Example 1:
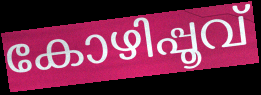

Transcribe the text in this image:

കോഴിപ്പൂവ്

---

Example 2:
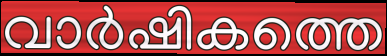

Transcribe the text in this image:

വാർഷികത്തെ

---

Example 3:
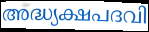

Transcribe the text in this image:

അദ്ധ്യക്ഷപദവി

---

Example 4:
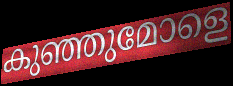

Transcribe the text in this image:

കുഞ്ഞുമോളെ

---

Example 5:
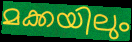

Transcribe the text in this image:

മക്കയിലും